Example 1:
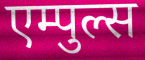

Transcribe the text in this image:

एम्पुल्स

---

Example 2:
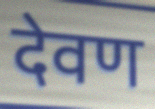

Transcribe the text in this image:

देवण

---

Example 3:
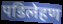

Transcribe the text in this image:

पडिलेहण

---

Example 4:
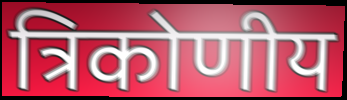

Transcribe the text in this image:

त्रिकोणीय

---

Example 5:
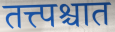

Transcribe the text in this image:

तत्त्पश्चात